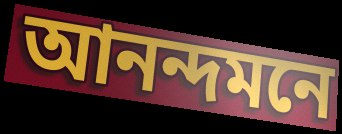
আনন্দমনে